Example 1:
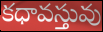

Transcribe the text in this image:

కధావస్తువు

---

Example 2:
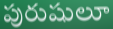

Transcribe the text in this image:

పురుషులూ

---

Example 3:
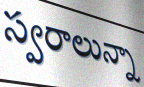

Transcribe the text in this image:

స్వరాలున్నా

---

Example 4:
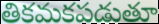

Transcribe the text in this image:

తికమకపడుతూ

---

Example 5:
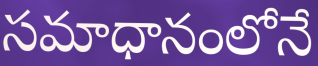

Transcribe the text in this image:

సమాధానంలోనే